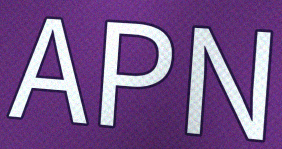
APN